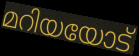
മറിയയോട്